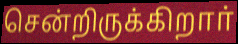
சென்றிருக்கிறார்